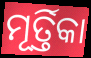
ମୂର୍ତ୍ତିକା